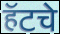
हॅटचे